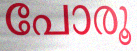
പോരൂ